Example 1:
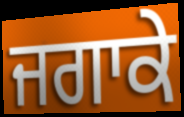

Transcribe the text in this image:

ਜਗਾਕੇ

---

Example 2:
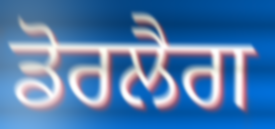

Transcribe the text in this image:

ਡੋਰਲੈਗ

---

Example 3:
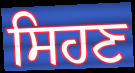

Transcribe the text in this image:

ਸਿਹਣ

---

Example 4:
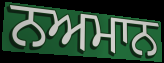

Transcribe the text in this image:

ਨਅਮਾਨ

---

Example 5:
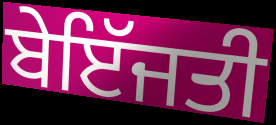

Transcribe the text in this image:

ਬੇਇੱਜਤੀ